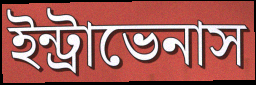
ইন্ট্রাভেনাস